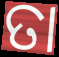
ତା